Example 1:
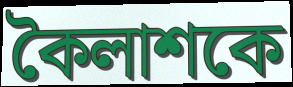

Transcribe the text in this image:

কৈলাশকে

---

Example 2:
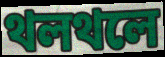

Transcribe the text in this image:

থলথলে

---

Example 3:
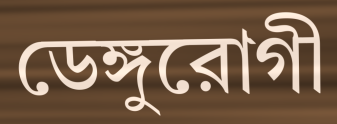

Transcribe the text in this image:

ডেঙ্গুরোগী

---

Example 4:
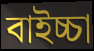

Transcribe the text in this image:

বাইচ্চা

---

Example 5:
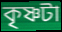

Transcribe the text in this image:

কৃষ্ণটা